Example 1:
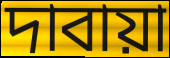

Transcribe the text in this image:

দাবায়া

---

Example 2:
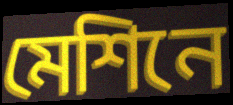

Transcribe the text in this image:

মেশিনে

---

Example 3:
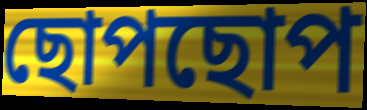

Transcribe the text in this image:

ছোপছোপ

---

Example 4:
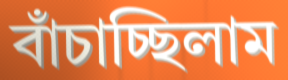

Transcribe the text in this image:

বাঁচাচ্ছিলাম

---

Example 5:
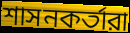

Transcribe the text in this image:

শাসনকর্তারা